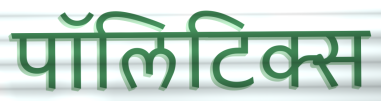
पॉलिटिक्स